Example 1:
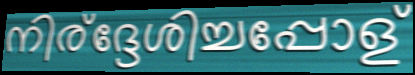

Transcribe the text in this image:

നിര്ദ്ദേശിച്ചപ്പോള്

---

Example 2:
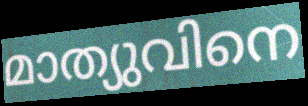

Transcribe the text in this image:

മാത്യുവിനെ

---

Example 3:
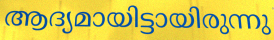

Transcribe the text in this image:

ആദ്യമായിട്ടായിരുന്നു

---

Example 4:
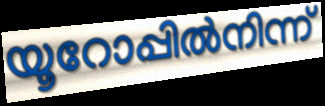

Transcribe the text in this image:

യൂറോപ്പിൽനിന്ന്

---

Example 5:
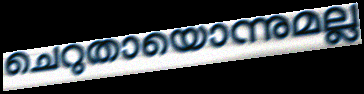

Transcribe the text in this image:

ചെറുതായൊന്നുമല്ല